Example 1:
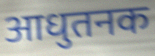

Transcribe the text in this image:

आधुतनक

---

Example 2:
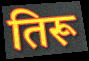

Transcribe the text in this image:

तिरू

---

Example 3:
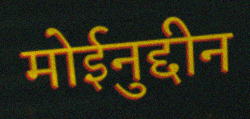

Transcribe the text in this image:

मोईनुद्दीन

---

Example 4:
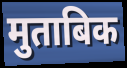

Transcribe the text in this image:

मुताबिक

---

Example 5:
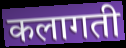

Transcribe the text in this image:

कलागती